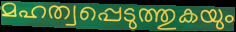
മഹത്വപ്പെടുത്തുകയും